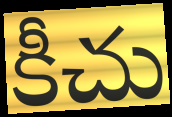
కీచు